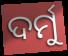
ଦର୍ମୁ